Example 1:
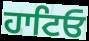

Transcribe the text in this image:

ਹਾਟਿਓ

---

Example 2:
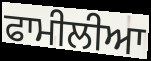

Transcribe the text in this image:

ਫਾਮੀਲੀਆ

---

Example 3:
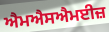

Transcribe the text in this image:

ਐਮਐਸਐਮਈਜ਼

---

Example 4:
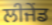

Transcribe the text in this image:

ਲੀਜੇਂਡ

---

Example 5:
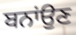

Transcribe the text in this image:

ਬਨਾਂਉਣ